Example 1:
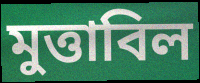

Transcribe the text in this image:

মুত্তাবিল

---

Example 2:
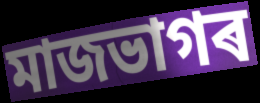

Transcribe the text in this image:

মাজভাগৰ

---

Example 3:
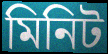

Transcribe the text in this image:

মিনিট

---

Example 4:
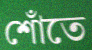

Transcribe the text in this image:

শোঁতে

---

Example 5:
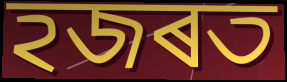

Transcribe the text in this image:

হজৰত